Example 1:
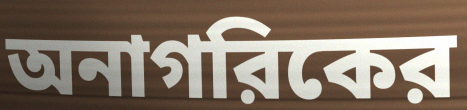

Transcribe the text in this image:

অনাগরিকের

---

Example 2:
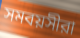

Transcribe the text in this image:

সমবয়সীরা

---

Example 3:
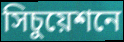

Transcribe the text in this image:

সিচুয়েশনে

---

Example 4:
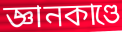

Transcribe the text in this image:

জ্ঞানকাণ্ডে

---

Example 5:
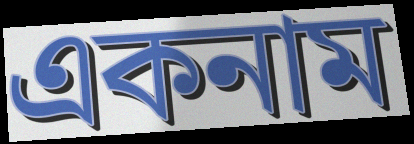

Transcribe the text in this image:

একনাম